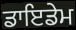
ਡਾਇਡੇਮ